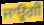
ਜਾਊਗੀ